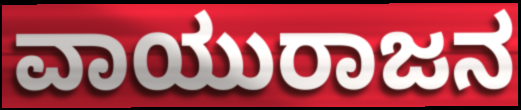
ವಾಯುರಾಜನ